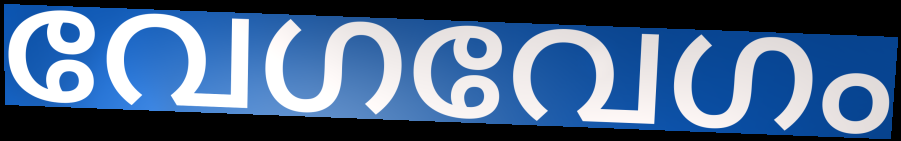
വേഗവേഗം